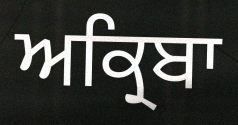
ਅਕ੍ਰਿਬਾ